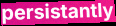
persistantly